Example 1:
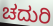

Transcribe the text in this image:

ಚದುರಿ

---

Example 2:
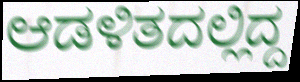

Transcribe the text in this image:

ಆಡಳಿತದಲ್ಲಿದ್ದ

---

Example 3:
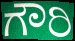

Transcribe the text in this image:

ಗೌರಿ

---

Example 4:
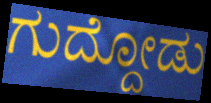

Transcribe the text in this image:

ಗುದ್ದೋಡು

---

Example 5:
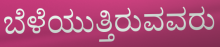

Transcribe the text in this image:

ಬೆಳೆಯುತ್ತಿರುವವರು